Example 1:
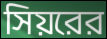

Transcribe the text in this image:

সিয়রের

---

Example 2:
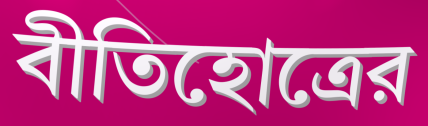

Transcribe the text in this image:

বীতিহোত্রের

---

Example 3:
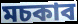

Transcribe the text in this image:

মচকাব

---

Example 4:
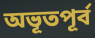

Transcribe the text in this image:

অভূতপূর্ব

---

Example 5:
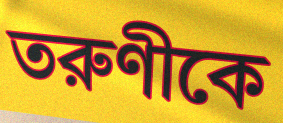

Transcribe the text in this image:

তরুণীকে